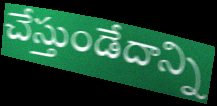
చేస్తుండేదాన్ని